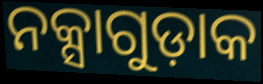
ନକ୍ସାଗୁଡ଼ାକ